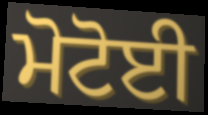
ਮੋਟੋਈ